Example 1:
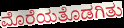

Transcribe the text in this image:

ಮೊರೆಯತೊಡಗಿತು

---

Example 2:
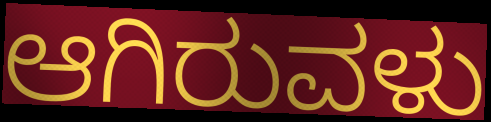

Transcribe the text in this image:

ಆಗಿರುವಳು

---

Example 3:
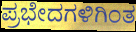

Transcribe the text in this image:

ಪ್ರಭೇದಗಳಿಗಿಂತ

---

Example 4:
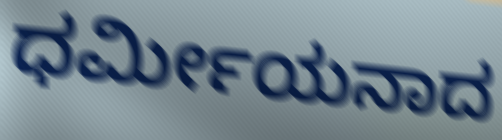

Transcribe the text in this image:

ಧರ್ಮೀಯನಾದ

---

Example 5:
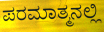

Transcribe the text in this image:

ಪರಮಾತ್ಮನಲ್ಲಿ